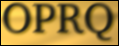
OPRQ